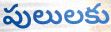
పులులకు